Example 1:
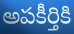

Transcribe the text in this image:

అపకీర్తికి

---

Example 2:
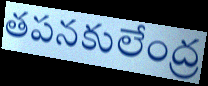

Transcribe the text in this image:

తపనకులేంద్ర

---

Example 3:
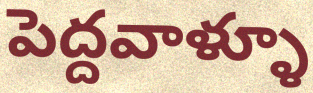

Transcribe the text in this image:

పెద్దవాళ్ళూ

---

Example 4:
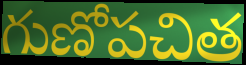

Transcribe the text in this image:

గుణోపచిత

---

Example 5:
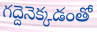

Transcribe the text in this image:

గద్దెనెక్కడంతో